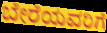
ಬೇರೆಯವರಿಗೆ